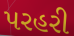
પરહરી